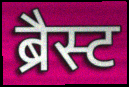
ब्रैस्ट